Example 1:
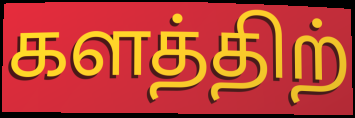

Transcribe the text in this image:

களத்திற்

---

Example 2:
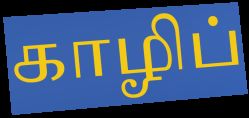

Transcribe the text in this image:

காழிப்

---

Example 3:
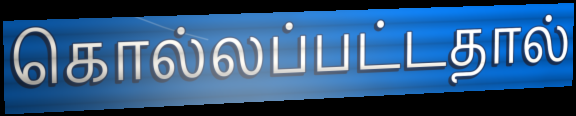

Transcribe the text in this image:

கொல்லப்பட்டதால்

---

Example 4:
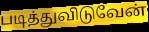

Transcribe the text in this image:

படித்துவிடுவேன்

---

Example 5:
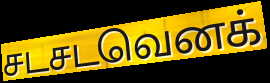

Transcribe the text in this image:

சடசடவெனக்